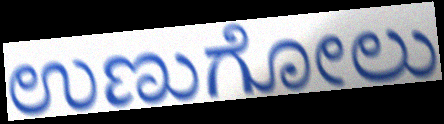
ಉಣುಗೋಲು